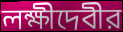
লক্ষীদেবীর